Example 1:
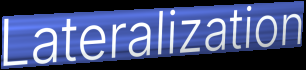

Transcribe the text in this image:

Lateralization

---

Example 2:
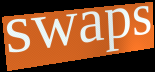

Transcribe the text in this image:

swaps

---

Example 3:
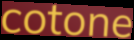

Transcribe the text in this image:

cotone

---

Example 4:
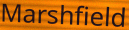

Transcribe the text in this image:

Marshfield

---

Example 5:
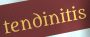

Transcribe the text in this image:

tendinitis